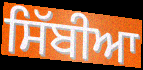
ਸਿੱਬੀਆ